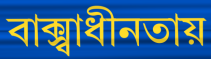
বাক্স্বাধীনতায়